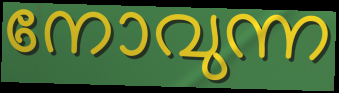
നോവുന്ന